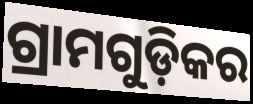
ଗ୍ରାମଗୁଡ଼ିକର